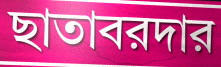
ছাতাবরদার